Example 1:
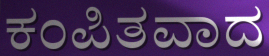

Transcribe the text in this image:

ಕಂಪಿತವಾದ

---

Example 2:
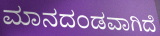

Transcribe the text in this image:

ಮಾನದಂಡವಾಗಿದೆ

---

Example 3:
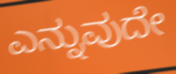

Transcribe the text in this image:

ಎನ್ನುವುದೇ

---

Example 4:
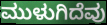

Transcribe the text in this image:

ಮುಳುಗಿದೆವು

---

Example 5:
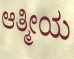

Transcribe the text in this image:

ಆತ್ಮೀಯ